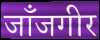
जाँजगीर